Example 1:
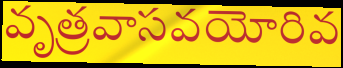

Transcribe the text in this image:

వృత్రవాసవయోరివ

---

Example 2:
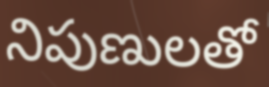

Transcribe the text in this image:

నిపుణులతో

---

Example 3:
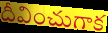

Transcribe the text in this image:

దీవించుగాక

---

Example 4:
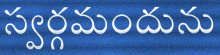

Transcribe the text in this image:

స్వర్గమందును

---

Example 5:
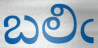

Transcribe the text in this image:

బలిఁ